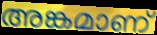
അങ്കമാണ്